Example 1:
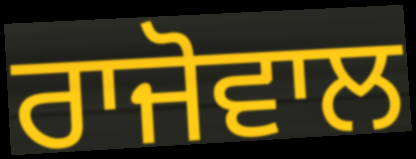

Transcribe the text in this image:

ਰਾਜੋਵਾਲ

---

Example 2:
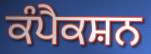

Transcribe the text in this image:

ਕੰਪੈਕਸ਼ਨ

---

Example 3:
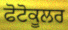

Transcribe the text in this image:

ਫੋਟੋਕੂਲਰ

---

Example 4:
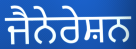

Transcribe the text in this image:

ਜੈਨੇਰੇਸ਼ਨ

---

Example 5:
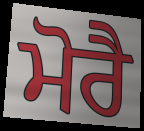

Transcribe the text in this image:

ਮੋਰੈ